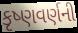
કૃષ્ણવર્ણની